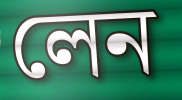
লেন